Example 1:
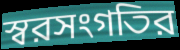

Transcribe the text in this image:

স্বরসংগতির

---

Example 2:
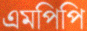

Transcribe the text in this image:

এমপিপি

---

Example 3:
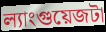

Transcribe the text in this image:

ল্যাংগুয়েজটা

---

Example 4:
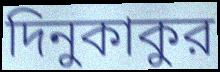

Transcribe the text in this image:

দিনুকাকুর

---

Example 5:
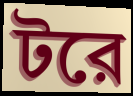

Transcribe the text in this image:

টরে